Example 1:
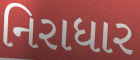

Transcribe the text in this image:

નિરાધાર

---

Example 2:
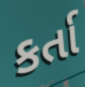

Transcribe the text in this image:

કર્તા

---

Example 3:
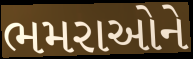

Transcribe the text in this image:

ભમરાઓને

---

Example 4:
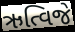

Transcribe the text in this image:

ઋત્વિજે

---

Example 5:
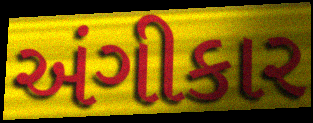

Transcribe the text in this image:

અંગીકાર